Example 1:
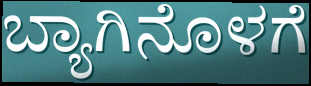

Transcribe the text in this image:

ಬ್ಯಾಗಿನೊಳಗೆ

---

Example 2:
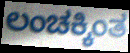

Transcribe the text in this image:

ಲಂಚಕ್ಕಿಂತ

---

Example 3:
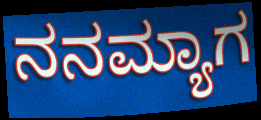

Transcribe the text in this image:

ನನಮ್ಯಾಗ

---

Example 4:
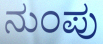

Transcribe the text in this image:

ನುಂಪು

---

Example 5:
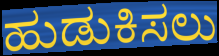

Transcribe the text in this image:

ಹುಡುಕಿಸಲು